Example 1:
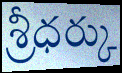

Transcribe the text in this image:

శ్రీధర్కు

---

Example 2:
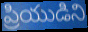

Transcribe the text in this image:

ప్రియుడిని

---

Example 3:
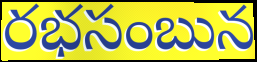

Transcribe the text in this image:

రభసంబున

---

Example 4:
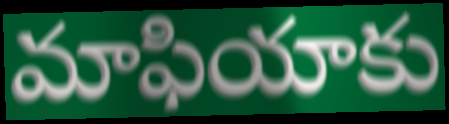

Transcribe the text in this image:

మాఫియాకు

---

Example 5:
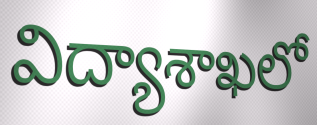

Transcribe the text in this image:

విద్యాశాఖలో